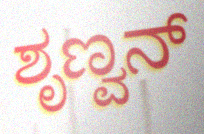
ಶೃಣ್ವನ್